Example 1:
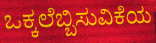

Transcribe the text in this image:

ಒಕ್ಕಲೆಬ್ಬಿಸುವಿಕೆಯ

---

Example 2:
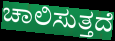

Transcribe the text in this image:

ಚಾಲಿಸುತ್ತದೆ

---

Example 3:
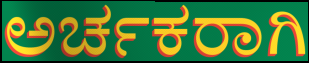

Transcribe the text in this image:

ಅರ್ಚಕರಾಗಿ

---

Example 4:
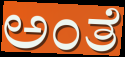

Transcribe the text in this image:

ಅಂತೆ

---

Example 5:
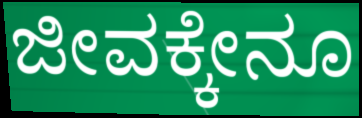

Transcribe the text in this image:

ಜೀವಕ್ಕೇನೂ